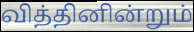
வித்தினின்றும்